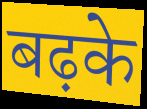
बढ़के